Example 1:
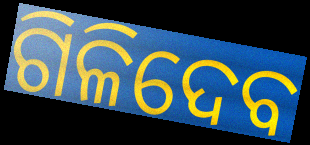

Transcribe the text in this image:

ଗିଳିଦେବ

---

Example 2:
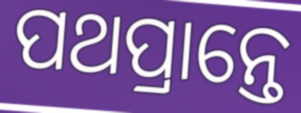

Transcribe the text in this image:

ପଥପ୍ରାନ୍ତେ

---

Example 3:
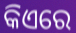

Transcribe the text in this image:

କିଏରେ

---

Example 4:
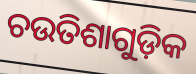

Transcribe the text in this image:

ଚଉତିଶାଗୁଡ଼ିକ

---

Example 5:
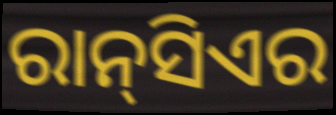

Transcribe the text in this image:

ରାନ୍‌ସିଏର